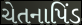
ચેતનાપિંડ